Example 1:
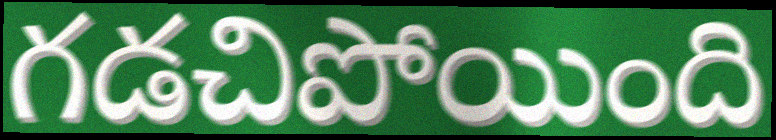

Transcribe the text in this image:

గడచిపోయింది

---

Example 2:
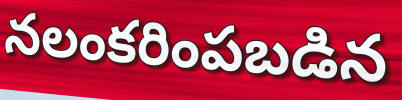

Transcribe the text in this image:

నలంకరింపబడిన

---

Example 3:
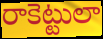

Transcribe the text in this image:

రాకెట్టులా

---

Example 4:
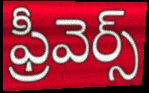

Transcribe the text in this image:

ఫ్రీవెర్స్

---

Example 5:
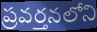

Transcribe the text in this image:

ప్రవర్తనలోని